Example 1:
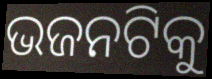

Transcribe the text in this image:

ଭଜନଟିକୁ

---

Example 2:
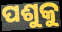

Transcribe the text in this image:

ପଶୁକୁ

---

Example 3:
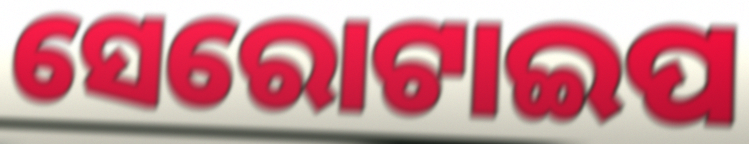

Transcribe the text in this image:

ସେରୋଟାଇପ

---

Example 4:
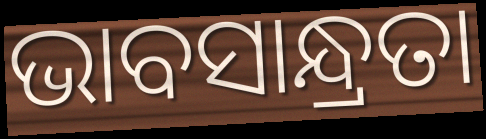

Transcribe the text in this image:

ଭାବସାନ୍ଧ୍ରତା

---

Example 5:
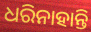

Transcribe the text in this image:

ଧରିନାହାନ୍ତି